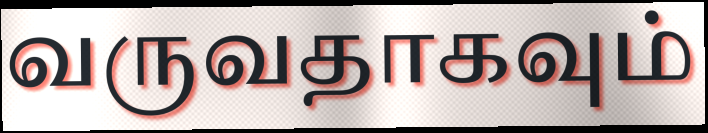
வருவதாகவும்